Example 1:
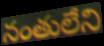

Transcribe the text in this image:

నంతులేని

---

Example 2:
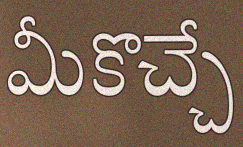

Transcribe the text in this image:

మీకొచ్చే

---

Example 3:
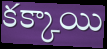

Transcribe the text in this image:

కక్కాయి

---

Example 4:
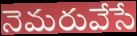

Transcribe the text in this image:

నెమరువేసే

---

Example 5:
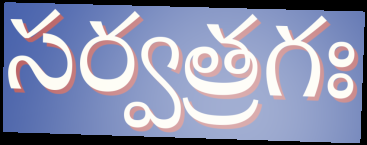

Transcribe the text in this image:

సర్వత్రగః